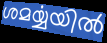
ശമൎയ്യയിൽ